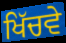
ਖਿੱਚਵੇ